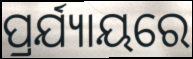
ପ୍ରର୍ଯ୍ୟାୟରେ